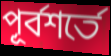
পূর্বশর্তে